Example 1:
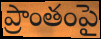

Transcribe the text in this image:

ప్రాంతంపై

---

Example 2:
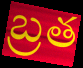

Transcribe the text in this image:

బ్రత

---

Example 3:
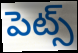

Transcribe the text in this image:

పెట్స్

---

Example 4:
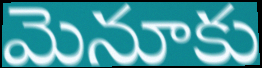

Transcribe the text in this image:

మెనూకు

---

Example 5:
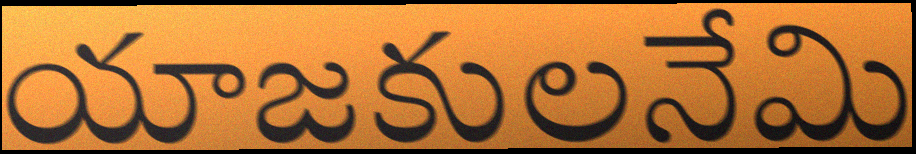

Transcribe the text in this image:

యాజకులనేమి